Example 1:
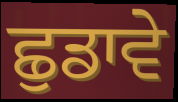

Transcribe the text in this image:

ਛੁਡਾਵੇ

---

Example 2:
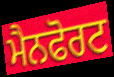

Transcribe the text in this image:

ਮੈਨਫੋਰਟ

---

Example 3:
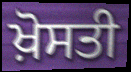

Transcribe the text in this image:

ਖ਼ੋਸਤੀ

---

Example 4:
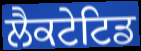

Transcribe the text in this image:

ਲੈਕਟੇਟਿਡ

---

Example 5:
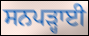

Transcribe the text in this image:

ਸਨਪੜ੍ਹਾਈ